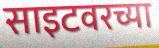
साइटवरच्या